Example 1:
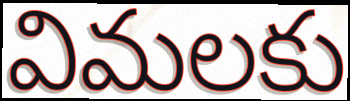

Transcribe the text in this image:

విమలకు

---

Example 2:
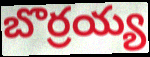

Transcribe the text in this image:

బొర్రయ్య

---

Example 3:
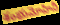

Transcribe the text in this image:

శంభుమోహినీ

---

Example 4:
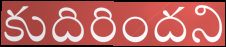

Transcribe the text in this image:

కుదిరిందని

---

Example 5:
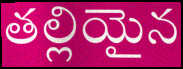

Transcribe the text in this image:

తల్లియైన